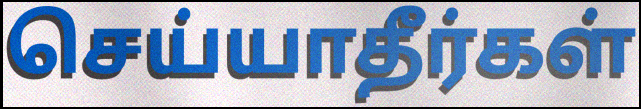
செய்யாதீர்கள்